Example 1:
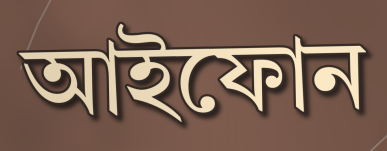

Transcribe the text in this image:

আইফোন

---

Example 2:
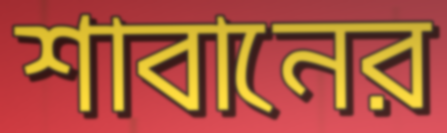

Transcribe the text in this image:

শাবানের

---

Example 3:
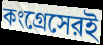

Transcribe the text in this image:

কংগ্রেসেরই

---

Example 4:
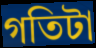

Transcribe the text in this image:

গতিটা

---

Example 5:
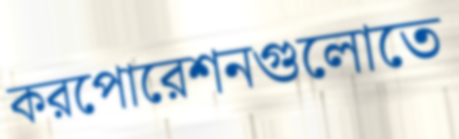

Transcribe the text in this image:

করপোরেশনগুলোতে